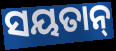
ସୟତାନ୍